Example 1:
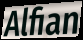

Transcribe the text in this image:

Alfian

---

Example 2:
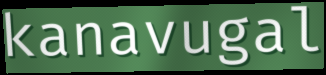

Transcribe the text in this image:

kanavugal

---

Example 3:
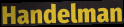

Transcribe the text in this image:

Handelman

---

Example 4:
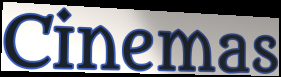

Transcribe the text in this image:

Cinemas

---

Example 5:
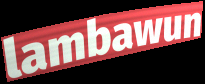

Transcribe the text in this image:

lambawun